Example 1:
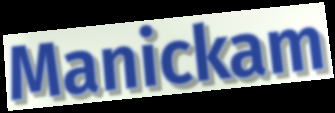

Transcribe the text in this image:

Manickam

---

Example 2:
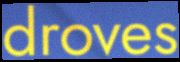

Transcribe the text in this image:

droves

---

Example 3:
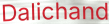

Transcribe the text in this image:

Dalichand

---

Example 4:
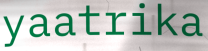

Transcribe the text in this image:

yaatrika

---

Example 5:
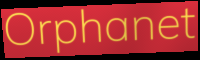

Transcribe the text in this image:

Orphanet